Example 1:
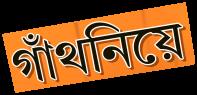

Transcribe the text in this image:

গাঁথনিয়ে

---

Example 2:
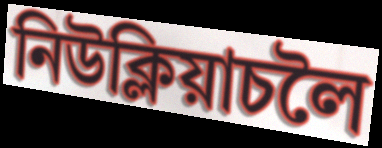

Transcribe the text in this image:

নিউক্লিয়াচলৈ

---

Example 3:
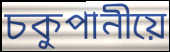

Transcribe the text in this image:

চকুপানীয়ে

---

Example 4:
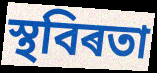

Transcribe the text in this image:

স্থবিৰতা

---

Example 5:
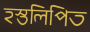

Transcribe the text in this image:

হস্তলিপিত